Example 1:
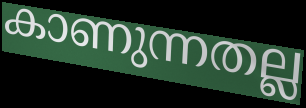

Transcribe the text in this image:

കാണുന്നതല്ല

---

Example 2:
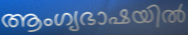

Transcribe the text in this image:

ആംഗ്യഭാഷയിൽ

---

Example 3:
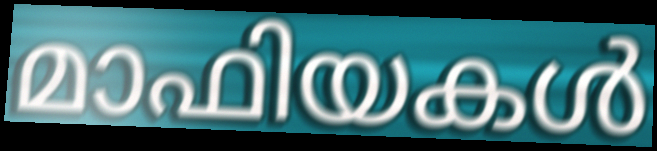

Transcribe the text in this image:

മാഫിയകൾ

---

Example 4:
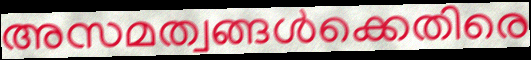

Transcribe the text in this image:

അസമത്വങ്ങൾക്കെതിരെ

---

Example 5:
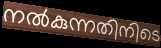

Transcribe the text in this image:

നൽകുന്നതിനിടെ